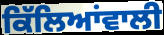
ਕਿੱਲਿਆਂਵਾਲੀ